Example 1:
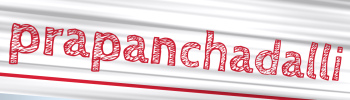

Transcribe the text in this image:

prapanchadalli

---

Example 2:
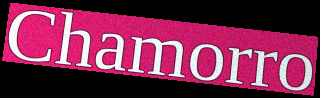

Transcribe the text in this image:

Chamorro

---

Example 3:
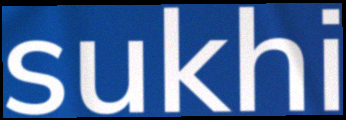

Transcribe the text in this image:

sukhi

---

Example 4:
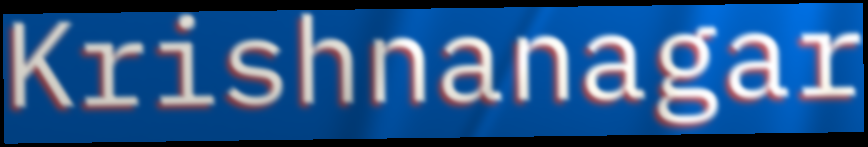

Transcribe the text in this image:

Krishnanagar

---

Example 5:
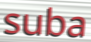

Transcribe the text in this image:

suba